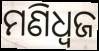
ମଣିଧ୍ୱଜ